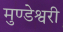
मुण्डेश्वरी